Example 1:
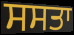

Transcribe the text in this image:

ਸਸਤਾ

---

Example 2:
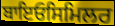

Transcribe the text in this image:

ਬਾਇਓਸਿਮਿਲਰ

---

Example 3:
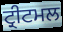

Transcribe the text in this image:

ਟ੍ਰੀਟਮਲ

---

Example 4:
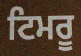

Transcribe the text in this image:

ਟਿਮਰੂ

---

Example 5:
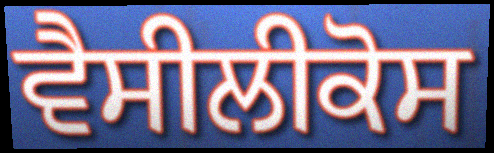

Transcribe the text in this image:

ਵੈਸੀਲੀਕੋਸ